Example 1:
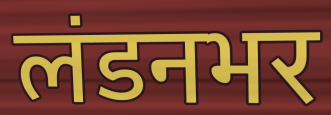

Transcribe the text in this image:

लंडनभर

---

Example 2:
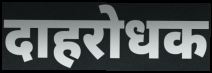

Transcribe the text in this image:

दाहरोधक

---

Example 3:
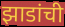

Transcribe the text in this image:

झाडांची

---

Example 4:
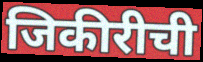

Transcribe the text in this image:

जिकीरीची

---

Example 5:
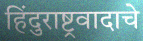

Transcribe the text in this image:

हिंदुराष्ट्रवादाचे